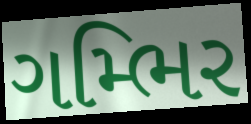
ગમ્ભિર